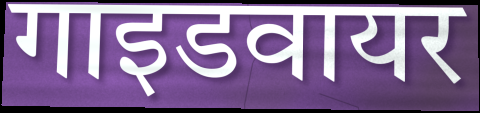
गाइडवायर